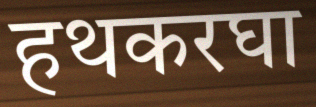
हथकरघा